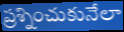
ప్రశ్నించుకునేలా